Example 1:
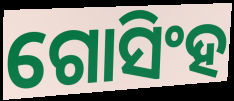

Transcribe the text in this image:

ଗୋସିଂହ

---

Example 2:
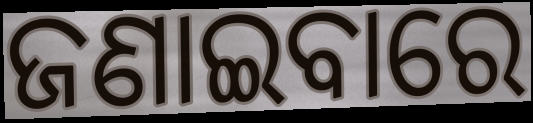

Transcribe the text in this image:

ଜଣାଇବାରେ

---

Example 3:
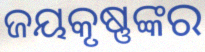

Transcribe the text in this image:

ଜୟକୃଷ୍ଣଙ୍କର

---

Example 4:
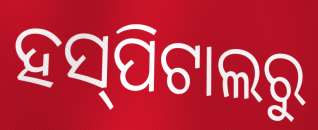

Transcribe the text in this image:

ହସ୍‍ପିଟାଲରୁ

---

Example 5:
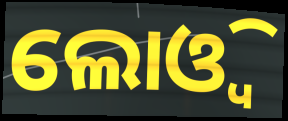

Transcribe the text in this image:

ଲୋଓ୍ବି